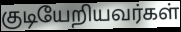
குடியேறியவர்கள்